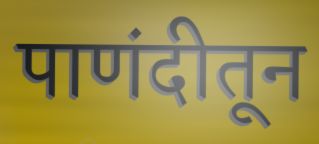
पाणंदीतून